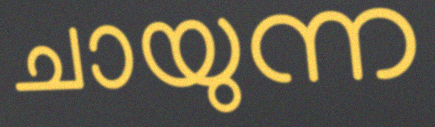
ചായുന്ന